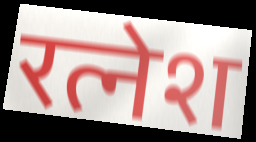
रत्नेश